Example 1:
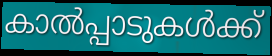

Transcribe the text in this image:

കാൽപ്പാടുകൾക്ക്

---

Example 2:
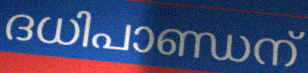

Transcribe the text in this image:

ദധിപാണ്ഡന്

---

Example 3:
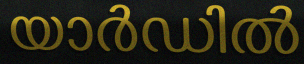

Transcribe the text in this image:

യാർഡിൽ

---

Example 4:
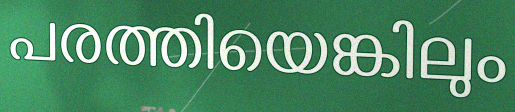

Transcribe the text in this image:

പരത്തിയെങ്കിലും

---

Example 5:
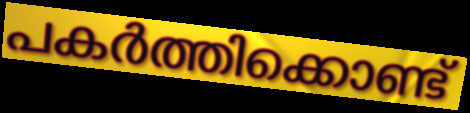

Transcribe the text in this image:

പകർത്തിക്കൊണ്ട്